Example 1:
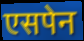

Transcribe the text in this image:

एसपेन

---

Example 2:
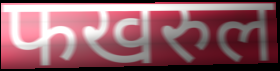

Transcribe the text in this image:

फखरुल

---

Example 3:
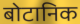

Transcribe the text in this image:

बोटानिक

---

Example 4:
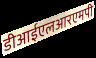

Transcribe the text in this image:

डीआईएलआरएमपी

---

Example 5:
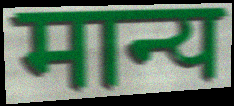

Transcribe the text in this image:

मान्य